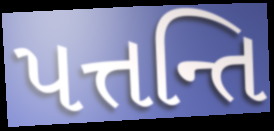
પત્તન્તિ